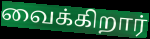
வைக்கிறார்